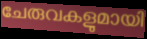
ചേരുവകളുമായി